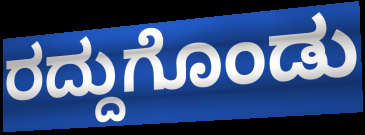
ರದ್ದುಗೊಂಡು